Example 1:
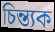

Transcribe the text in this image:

চিন্ত্যক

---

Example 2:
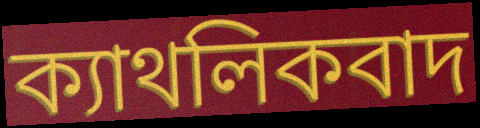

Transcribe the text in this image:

ক্যাথলিকবাদ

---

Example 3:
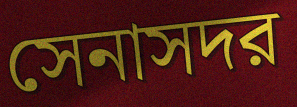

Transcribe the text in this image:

সেনাসদর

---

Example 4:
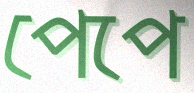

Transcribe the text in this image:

পেপে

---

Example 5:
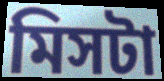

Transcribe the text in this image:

মিসটা